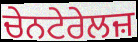
ਚੇਨਟੇਰੇਲਜ਼